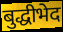
बुद्धीभेद